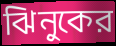
ঝিনুকের